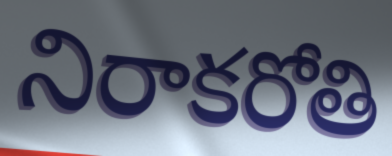
నిరాకరోతి